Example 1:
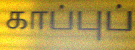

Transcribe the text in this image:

காப்புப்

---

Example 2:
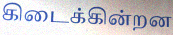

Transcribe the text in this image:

கிடைக்கின்றன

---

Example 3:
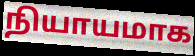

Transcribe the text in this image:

நியாயமாக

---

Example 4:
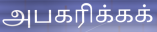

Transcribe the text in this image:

அபகரிக்கக்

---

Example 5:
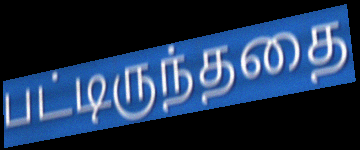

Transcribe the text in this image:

பட்டிருந்ததை